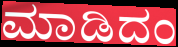
ಮಾಡಿದಂ